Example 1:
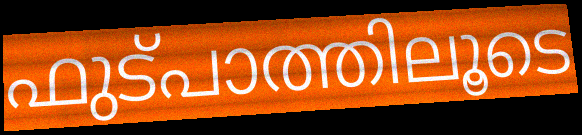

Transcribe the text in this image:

ഫുട്പാത്തിലൂടെ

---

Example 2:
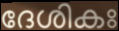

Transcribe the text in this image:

ദേശികഃ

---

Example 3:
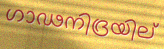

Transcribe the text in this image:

ഗാഢനിദ്രയില്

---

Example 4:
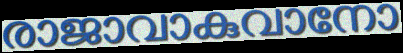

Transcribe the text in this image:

രാജാവാകുവാനോ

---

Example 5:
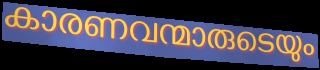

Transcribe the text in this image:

കാരണവന്മാരുടെയും